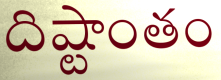
దిష్టాంతం